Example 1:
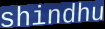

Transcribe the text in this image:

shindhu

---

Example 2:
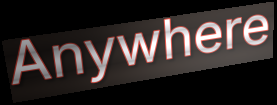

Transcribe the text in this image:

Anywhere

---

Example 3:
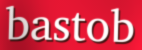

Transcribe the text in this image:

bastob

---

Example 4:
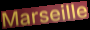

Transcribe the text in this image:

Marseille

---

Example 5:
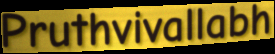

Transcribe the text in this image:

Pruthvivallabh